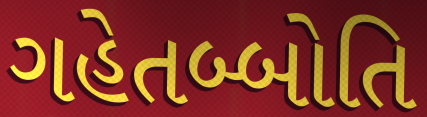
ગહેતબ્બોતિ